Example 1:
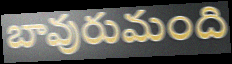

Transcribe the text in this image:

బావురుమంది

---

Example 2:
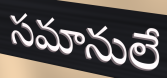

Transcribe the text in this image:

సమానులే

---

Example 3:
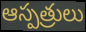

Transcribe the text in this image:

ఆస్పత్రులు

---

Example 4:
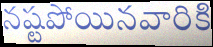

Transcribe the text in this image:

నష్టపోయినవారికి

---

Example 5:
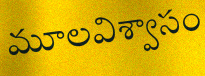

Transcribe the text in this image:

మూలవిశ్వాసం